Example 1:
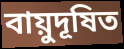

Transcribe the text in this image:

বায়ুদূষিত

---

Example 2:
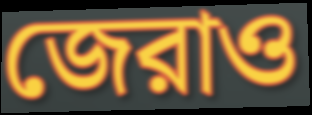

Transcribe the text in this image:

জেরাও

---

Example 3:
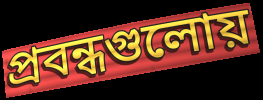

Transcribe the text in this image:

প্রবন্ধগুলোয়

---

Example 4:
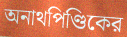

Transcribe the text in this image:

অনাথপিণ্ডিকের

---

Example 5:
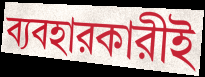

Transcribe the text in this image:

ব্যবহারকারীই